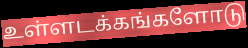
உள்ளடக்கங்களோடு